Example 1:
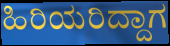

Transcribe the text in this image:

ಹಿರಿಯರಿದ್ದಾಗ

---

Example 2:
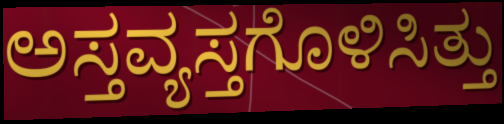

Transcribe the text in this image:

ಅಸ್ತವ್ಯಸ್ತಗೊಳಿಸಿತ್ತು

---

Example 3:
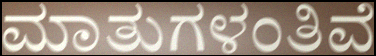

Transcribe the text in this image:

ಮಾತುಗಳಂತಿವೆ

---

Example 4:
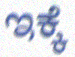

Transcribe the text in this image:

ಇಕ್ಕೆ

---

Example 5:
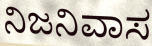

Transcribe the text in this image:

ನಿಜನಿವಾಸ